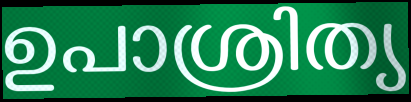
ഉപാശ്രിത്യ